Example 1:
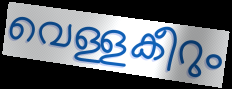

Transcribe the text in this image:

വെള്ളകീറും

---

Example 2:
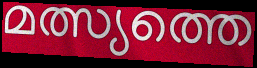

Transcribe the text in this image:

മത്സ്യത്തെ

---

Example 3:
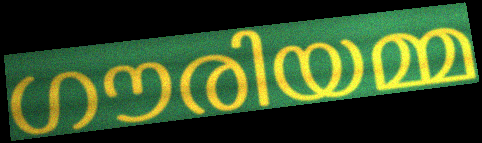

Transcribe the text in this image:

ഗൗരിയമ്മ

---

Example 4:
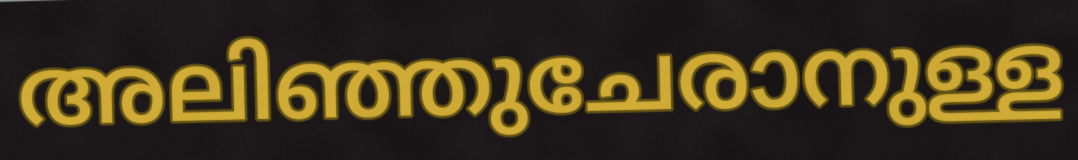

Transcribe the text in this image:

അലിഞ്ഞുചേരാനുള്ള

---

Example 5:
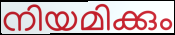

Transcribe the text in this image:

നിയമിക്കും